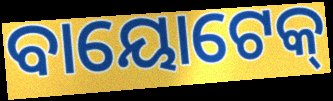
ବାୟୋଟେକ୍